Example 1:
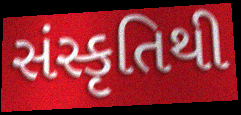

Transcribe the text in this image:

સંસ્કૃતિથી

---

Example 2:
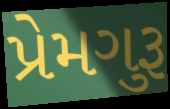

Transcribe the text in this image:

પ્રેમગુરૂ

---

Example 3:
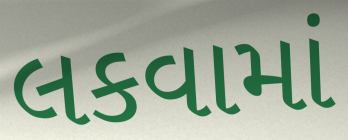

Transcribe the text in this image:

લકવામાં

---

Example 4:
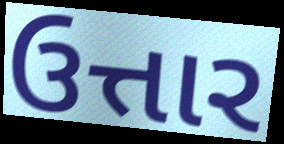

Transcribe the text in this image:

ઉત્તાર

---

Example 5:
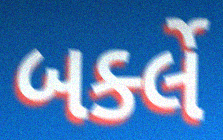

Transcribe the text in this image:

બર્ક્લે